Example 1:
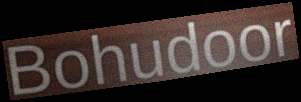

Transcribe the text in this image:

Bohudoor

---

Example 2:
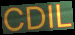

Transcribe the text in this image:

CDIL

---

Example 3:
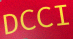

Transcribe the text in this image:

DCCI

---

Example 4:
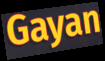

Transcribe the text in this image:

Gayan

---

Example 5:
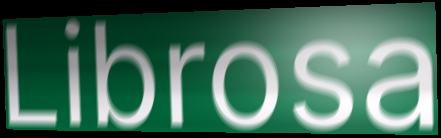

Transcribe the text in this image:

Librosa